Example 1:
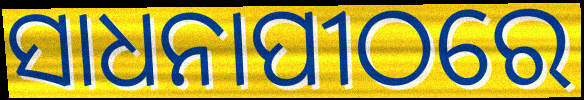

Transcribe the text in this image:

ସାଧନାପୀଠରେ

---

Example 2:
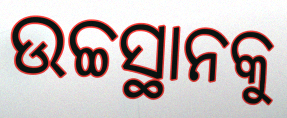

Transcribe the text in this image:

ଉଚ୍ଚସ୍ଥାନକୁ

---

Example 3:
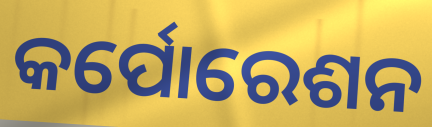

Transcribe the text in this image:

କର୍ପୋରେଶନ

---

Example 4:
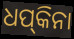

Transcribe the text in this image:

ଧପ୍‍କିନା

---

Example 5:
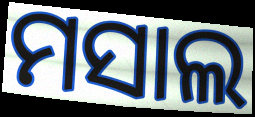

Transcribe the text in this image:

ମସାଲ